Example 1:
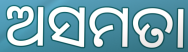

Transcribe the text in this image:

ଅସମତା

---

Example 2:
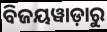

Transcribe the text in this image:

ବିଜୟୱାଡ଼ାରୁ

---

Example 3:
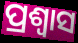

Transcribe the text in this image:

ପ୍ରଶ୍ଵାସ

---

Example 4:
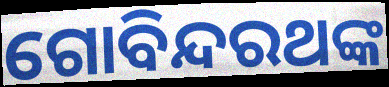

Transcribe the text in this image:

ଗୋବିନ୍ଦରଥଙ୍କ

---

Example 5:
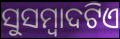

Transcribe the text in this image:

ସୁସମ୍ବାଦଟିଏ